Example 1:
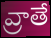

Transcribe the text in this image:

వ్రాతే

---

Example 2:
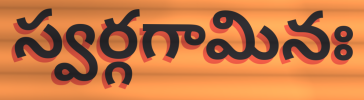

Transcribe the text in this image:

స్వర్గగామినః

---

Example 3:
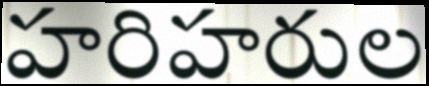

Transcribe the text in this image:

హరిహరుల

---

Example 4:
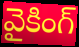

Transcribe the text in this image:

వైకింగ్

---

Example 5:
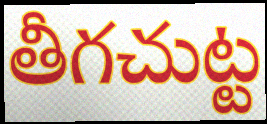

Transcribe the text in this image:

తీగచుట్ట